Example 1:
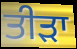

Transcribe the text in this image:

ਤੀੜਾ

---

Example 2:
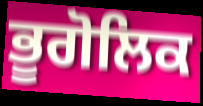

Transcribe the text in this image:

ਭੂਗੋਲਿਕ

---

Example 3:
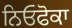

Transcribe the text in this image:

ਨਿਓਫੋਕਾ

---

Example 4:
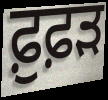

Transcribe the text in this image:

ਫ਼ੁਫ਼ੜ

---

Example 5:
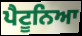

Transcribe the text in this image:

ਪੈਟੂਨਿਆ